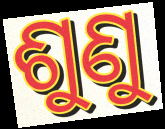
ଶୁଣୁ